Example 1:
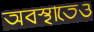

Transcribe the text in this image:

অবস্থাতেও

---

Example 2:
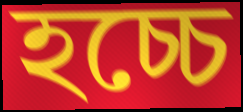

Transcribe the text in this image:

হচ্চে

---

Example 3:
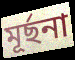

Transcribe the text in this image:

মূর্ছনা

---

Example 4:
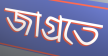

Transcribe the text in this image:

জাগ্রতে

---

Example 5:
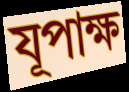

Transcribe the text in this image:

যূপাক্ষ